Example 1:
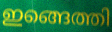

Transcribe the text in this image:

ഇങ്ങെത്തി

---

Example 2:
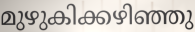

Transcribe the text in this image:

മുഴുകിക്കഴിഞ്ഞു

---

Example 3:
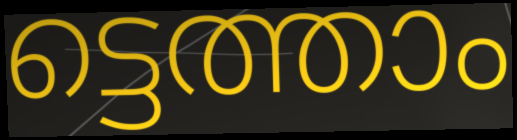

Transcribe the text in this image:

ട്ടെത്താം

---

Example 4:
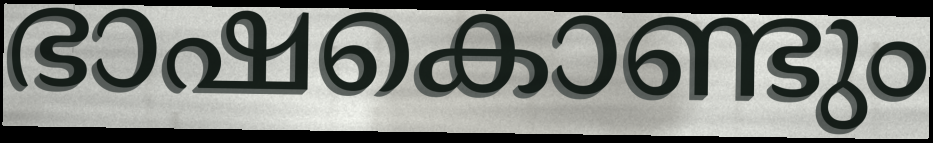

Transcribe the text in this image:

ഭാഷകൊണ്ടും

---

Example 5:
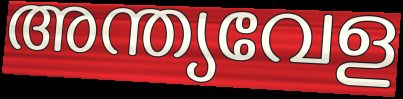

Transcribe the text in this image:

അന്ത്യവേള